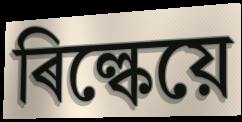
ৰিল্কেয়ে